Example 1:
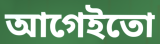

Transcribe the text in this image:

আগেইতো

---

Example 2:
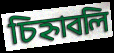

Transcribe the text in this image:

চিহ্নাবলি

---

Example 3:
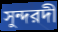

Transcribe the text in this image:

সুন্দরদী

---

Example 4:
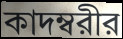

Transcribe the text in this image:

কাদম্বরীর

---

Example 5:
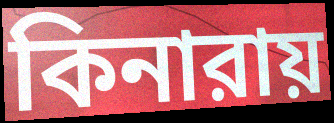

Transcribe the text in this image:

কিনারায়